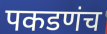
पकडणंच